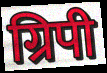
ग्रिपी